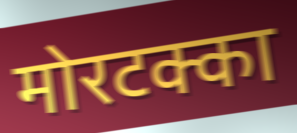
मोरटक्का